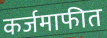
कर्जमाफीत